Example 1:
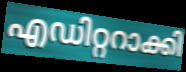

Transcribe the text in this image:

എഡിറ്ററാക്കി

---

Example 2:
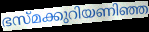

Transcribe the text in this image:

ഭസ്മക്കുറിയണിഞ്ഞ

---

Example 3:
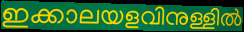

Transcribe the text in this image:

ഇക്കാലയളവിനുള്ളിൽ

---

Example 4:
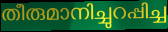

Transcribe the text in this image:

തീരുമാനിച്ചുറപ്പിച്ച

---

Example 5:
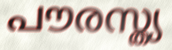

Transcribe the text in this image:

പൗരസ്ത്യ